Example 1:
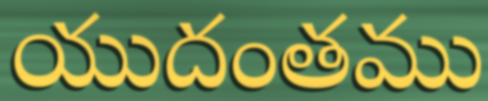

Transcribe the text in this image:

యుదంతము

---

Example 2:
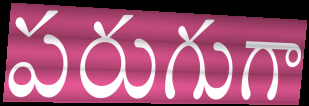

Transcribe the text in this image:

పరుగుగా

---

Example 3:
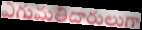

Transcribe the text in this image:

ఎగుమతిదారులుగా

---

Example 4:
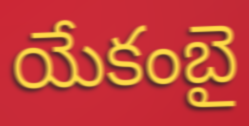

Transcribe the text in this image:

యేకంబై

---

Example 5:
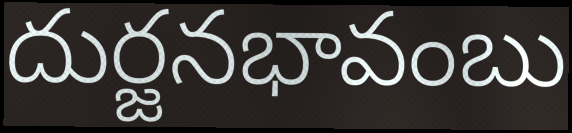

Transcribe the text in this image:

దుర్జనభావంబు